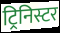
ट्रिनिस्टर